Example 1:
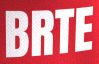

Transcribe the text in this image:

BRTE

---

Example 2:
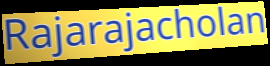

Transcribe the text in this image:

Rajarajacholan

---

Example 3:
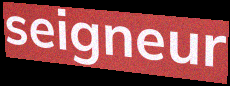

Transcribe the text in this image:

seigneur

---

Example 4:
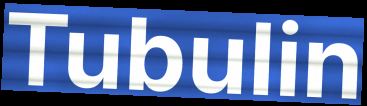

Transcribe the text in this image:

Tubulin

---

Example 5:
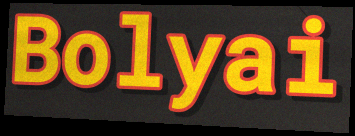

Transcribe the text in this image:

Bolyai